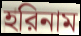
হরিনাম